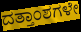
ದತ್ತಾಂಶಗಳೇ